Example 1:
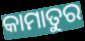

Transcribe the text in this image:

କାମାତୁର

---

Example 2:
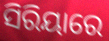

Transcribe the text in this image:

ସିରିୟାରେ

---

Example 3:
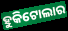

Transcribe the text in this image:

ହୁକିଟୋଲାର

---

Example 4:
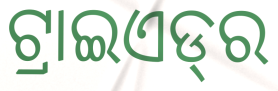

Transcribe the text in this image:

ଟ୍ରାଇଏଡ୍‌ର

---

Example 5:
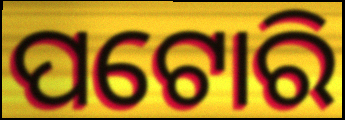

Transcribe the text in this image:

ପଟୋରି